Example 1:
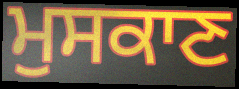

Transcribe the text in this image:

ਮੁਸਕਾਣ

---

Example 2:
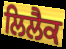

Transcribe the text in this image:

ਲਿਲੈਕ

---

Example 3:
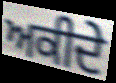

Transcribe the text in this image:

ਅਕੀਦੇ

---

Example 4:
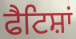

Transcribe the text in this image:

ਫੈਟਿਸ਼ਾਂ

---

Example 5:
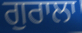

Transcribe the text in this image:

ਗੁਰਾਲਾ